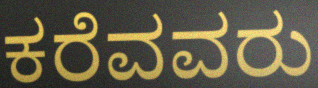
ಕರೆವವರು